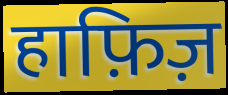
हाफ़िज़